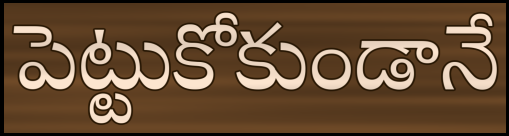
పెట్టుకోకుండానే